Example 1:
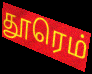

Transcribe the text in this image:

தூரெம்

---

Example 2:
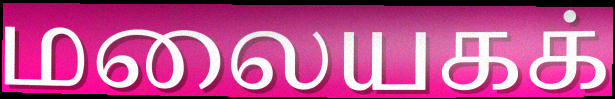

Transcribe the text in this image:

மலையகக்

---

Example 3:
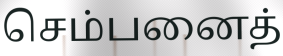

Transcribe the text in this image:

செம்பனைத்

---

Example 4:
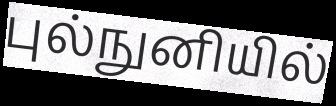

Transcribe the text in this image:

புல்நுனியில்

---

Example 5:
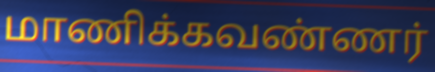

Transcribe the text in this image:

மாணிக்கவண்ணர்